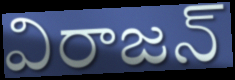
విరాజన్